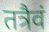
तत्रैवं